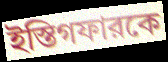
ইস্তিগফারকে